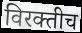
विरक्तीच